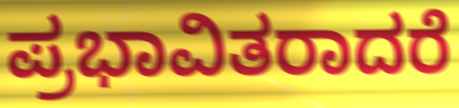
ಪ್ರಭಾವಿತರಾದರೆ